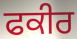
ਫਕੀਰ